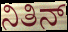
ನಿತಿನ್